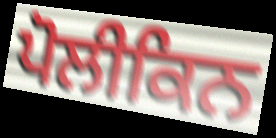
ਪੋਲੀਕਿਨ